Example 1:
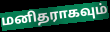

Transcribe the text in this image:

மனிதராகவும்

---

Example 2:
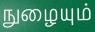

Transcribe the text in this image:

நுழையும்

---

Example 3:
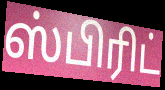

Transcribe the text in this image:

ஸ்பிரிட்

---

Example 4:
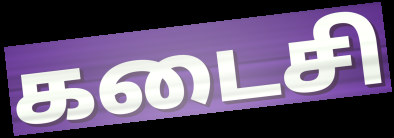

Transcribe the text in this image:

கடைசி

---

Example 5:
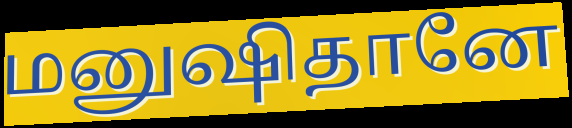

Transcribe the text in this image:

மனுஷிதானே